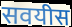
सवयीस